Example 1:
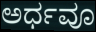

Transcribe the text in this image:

ಅರ್ಧವೂ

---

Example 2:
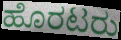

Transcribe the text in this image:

ಹೊರಟರು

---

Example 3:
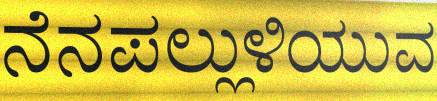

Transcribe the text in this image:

ನೆನಪಲ್ಲುಳಿಯುವ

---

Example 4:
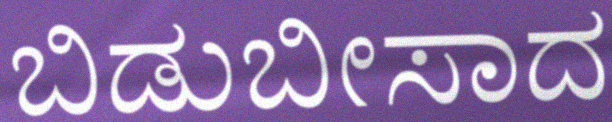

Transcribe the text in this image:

ಬಿಡುಬೀಸಾದ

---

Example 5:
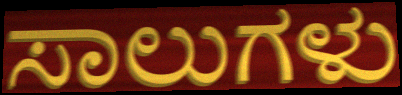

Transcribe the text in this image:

ಸಾಲುಗಳು